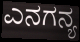
ಎನಗನ್ಯ